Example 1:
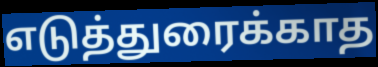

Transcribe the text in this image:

எடுத்துரைக்காத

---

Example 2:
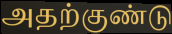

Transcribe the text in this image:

அதற்குண்டு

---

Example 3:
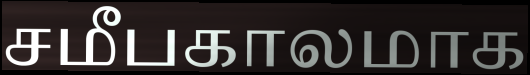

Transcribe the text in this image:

சமீபகாலமாக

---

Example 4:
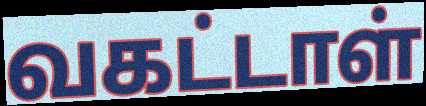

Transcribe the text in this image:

வகட்டாள்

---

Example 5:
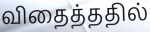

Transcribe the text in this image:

விதைத்ததில்